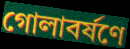
গোলাবর্ষণে